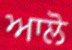
ਆਲੋ